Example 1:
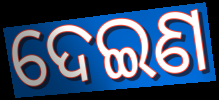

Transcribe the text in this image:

ଦେଇଣ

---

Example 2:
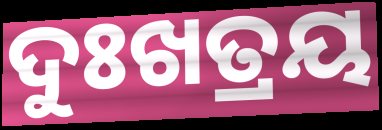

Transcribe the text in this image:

ଦୁଃଖତ୍ରୟ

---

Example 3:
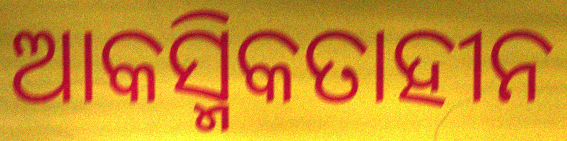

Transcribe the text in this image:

ଆକସ୍ମିକତାହୀନ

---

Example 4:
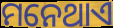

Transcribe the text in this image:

ମନେଥାଏ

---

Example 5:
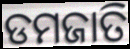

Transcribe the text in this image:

ଡମଜାତି